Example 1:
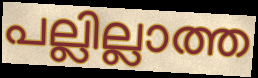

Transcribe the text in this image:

പല്ലില്ലാത്ത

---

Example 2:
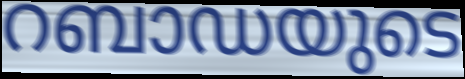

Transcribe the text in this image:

റബാഡയുടെ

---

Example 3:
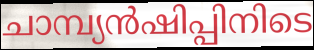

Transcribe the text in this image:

ചാമ്പ്യൻഷിപ്പിനിടെ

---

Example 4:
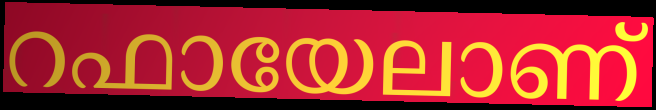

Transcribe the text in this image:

റഫായേലാണ്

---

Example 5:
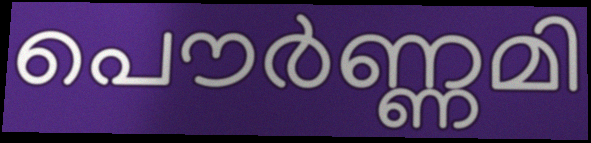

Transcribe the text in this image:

പൌർണ്ണമി